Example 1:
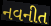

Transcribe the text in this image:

નવનીત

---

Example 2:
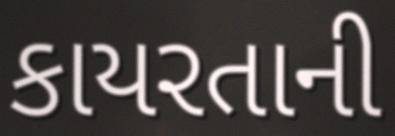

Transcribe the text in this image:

કાયરતાની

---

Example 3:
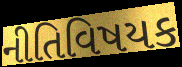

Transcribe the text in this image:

નીતિવિષયક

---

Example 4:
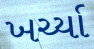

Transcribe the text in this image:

ખર્ચ્યા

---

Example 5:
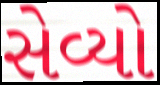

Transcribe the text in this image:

સેવ્યો